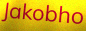
Jakobho